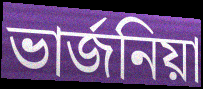
ভাৰ্জনিয়া